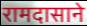
रामदासाने